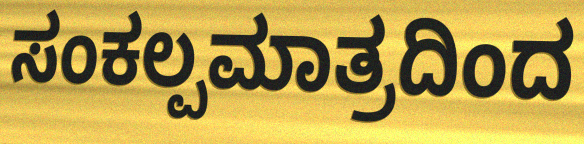
ಸಂಕಲ್ಪಮಾತ್ರದಿಂದ